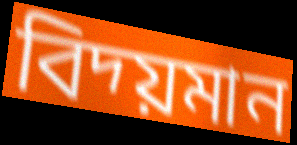
বিদ্য়মান